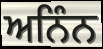
ਅਨਿੰਨ